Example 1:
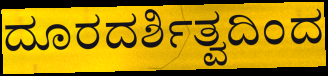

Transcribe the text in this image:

ದೂರದರ್ಶಿತ್ವದಿಂದ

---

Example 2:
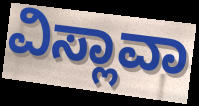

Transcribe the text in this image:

ವಿಸ್ಲಾವಾ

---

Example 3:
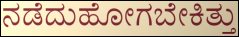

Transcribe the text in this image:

ನಡೆದುಹೋಗಬೇಕಿತ್ತು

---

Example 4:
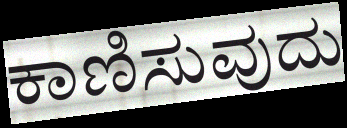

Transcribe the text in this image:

ಕಾಣಿಸುವುದು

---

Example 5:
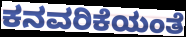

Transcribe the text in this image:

ಕನವರಿಕೆಯಂತೆ